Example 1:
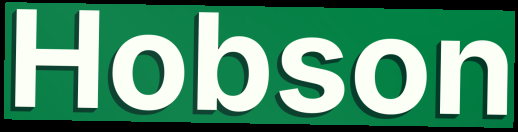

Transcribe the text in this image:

Hobson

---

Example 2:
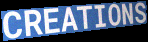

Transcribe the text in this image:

CREATIONS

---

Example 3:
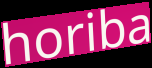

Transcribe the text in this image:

horiba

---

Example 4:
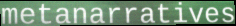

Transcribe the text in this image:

metanarratives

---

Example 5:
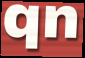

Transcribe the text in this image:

qn